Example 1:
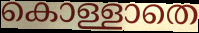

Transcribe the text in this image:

കൊള്ളാതെ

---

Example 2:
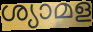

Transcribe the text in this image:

ശ്യാമള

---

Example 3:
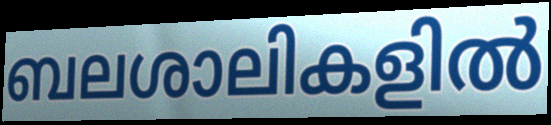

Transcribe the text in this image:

ബലശാലികളിൽ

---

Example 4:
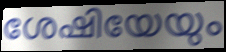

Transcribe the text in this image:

ശേഷിയേയും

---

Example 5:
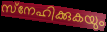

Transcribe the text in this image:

സ്‌നേഹിക്കുകയും